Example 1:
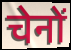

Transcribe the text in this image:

चेनों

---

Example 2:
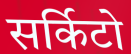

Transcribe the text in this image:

सर्किटो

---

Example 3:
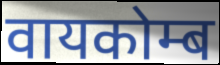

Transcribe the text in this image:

वायकोम्ब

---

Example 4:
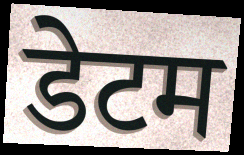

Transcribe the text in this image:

डेटम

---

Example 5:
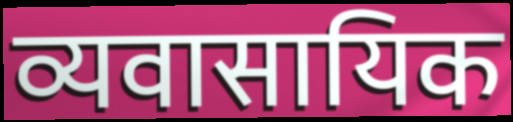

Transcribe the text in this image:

व्यवासायिक